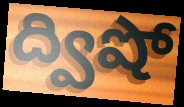
ద్విషో